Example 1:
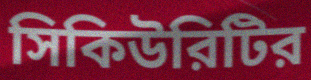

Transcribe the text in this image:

সিকিউরিটির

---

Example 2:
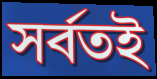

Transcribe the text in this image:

সর্বতই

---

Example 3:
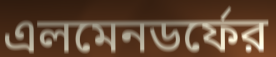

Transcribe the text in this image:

এলমেনডর্ফের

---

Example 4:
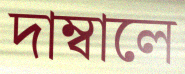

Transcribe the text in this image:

দাম্বালে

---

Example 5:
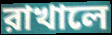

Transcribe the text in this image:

রাখালে